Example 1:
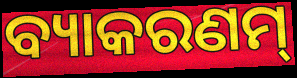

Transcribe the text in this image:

ବ୍ୟାକରଣମ୍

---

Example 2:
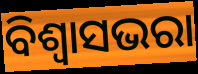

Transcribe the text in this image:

ବିଶ୍ୱାସଭରା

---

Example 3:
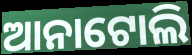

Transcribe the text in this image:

ଆନାଟୋଲି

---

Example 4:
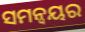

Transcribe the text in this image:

ସମନ୍ଵୟର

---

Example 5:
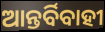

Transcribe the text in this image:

ଆନ୍ତର୍ବିବାହୀ